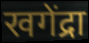
खगेंद्रा